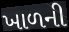
ખાળની